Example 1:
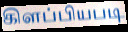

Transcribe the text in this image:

கிளப்பியபடி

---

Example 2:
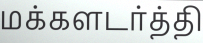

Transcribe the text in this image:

மக்களடர்த்தி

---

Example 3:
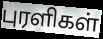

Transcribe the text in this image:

புரளிகள்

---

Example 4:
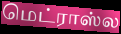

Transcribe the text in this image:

மெட்ராஸ்ல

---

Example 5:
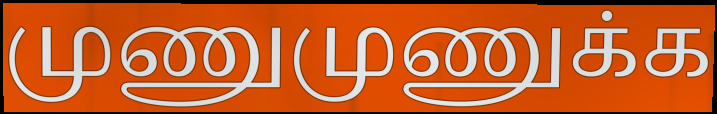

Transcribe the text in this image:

முணுமுணுக்க